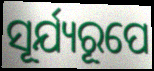
ସୂର୍ଯ୍ୟରୂପେ